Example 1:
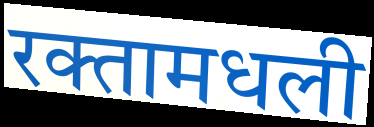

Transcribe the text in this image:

रक्तामधली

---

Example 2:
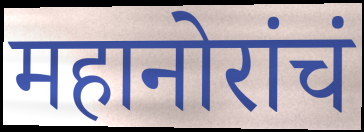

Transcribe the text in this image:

महानोरांचं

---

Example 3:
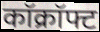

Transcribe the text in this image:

कॉक्रॉफ्ट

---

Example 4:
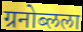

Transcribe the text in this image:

ग्रनोब्लला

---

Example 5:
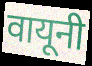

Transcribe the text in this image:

वायूनी